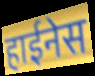
हाईनेस